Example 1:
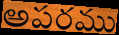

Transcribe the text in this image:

అపరము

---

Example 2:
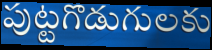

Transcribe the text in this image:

పుట్టగొడుగులకు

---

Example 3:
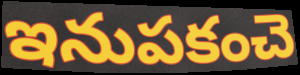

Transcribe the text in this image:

ఇనుపకంచె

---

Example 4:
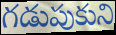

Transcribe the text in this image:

గడుపుకుని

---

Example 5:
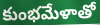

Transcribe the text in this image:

కుంభమేళాతో